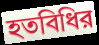
হতবিধির